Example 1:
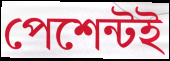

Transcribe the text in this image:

পেশেন্টই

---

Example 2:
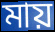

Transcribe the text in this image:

মায়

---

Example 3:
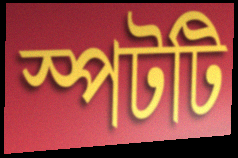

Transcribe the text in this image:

স্পটটি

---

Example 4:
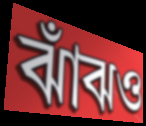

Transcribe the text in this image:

ঝাঁঝও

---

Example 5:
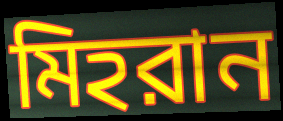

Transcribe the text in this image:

মিহরান